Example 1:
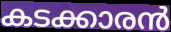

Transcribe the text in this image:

കടക്കാരൻ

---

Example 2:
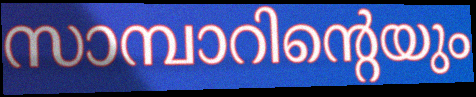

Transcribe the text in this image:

സാമ്പാറിന്റെയും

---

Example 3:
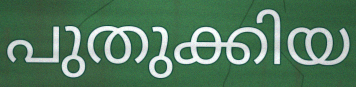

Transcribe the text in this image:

പുതുക്കിയ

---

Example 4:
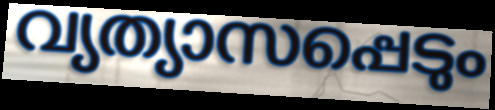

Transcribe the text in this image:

വ്യത്യാസപ്പെടും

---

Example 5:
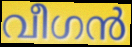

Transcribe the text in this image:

വീഗൻ